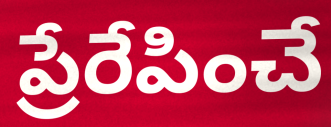
ప్రేరేపించే